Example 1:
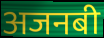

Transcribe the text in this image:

अजनबी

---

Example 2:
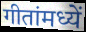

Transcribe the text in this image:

गीतांमध्यें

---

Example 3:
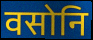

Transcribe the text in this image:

वसोनि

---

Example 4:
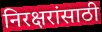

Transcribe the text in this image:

निरक्षरांसाठी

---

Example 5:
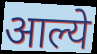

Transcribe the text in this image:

आल्ये